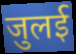
जुलई